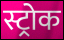
स्ट्रोक